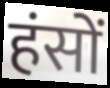
हंसों